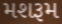
મશરૂમ